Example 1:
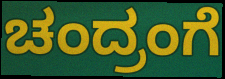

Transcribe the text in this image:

ಚಂದ್ರಂಗೆ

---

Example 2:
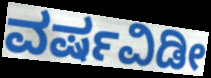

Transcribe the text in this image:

ವರ್ಷವಿಡೀ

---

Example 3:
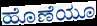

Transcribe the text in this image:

ಹೊಣೆಯೂ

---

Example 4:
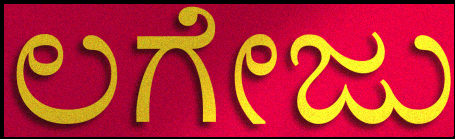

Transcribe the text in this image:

ಲಗೇಜು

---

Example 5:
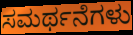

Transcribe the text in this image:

ಸಮರ್ಥನೆಗಳು